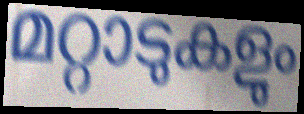
മറ്റാടുകളും